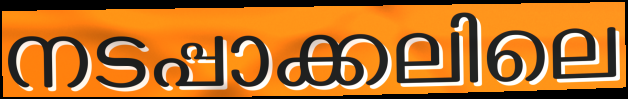
നടപ്പാക്കലിലെ